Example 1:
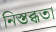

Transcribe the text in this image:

নিস্তব্ধতা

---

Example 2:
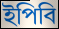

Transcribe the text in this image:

ইপিবি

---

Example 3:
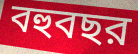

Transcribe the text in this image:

বহুবছর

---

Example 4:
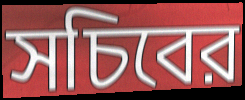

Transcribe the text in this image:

সচিবের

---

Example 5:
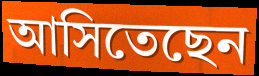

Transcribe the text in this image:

আসিতেছেন